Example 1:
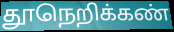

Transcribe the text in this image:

தூநெறிக்கண்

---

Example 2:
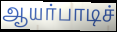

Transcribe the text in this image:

ஆயர்பாடிச்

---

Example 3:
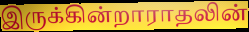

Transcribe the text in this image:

இருக்கின்றாராதலின்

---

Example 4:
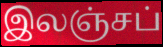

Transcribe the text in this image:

இலஞ்சப்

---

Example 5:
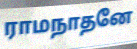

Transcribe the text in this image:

ராமநாதனே